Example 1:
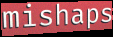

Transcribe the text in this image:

mishaps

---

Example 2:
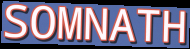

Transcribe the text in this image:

SOMNATH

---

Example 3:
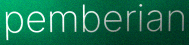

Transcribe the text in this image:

pemberian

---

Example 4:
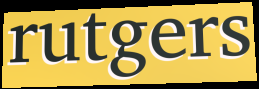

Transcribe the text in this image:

rutgers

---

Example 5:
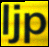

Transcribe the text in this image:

ljp